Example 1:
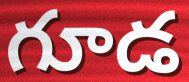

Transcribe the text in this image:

గూడ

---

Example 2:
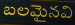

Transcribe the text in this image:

బలమైనవి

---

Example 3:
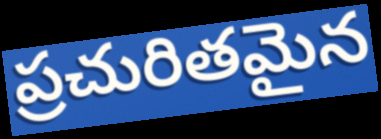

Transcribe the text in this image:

ప్రచురితమైన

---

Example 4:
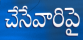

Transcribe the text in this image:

చేసేవారిపై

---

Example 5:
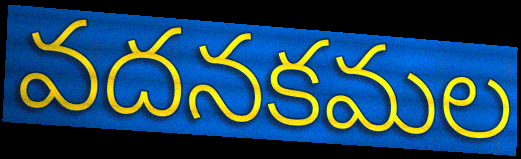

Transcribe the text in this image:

వదనకమల